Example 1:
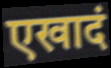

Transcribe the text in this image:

एखादं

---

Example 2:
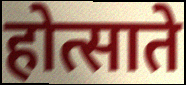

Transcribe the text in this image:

होत्साते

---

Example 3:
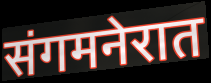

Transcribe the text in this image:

संगमनेरात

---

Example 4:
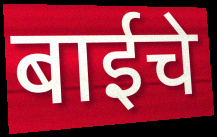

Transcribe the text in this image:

बाईचे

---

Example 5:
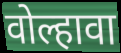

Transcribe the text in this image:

वोल्हावा